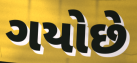
ગયોછે